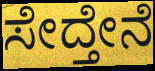
ಸೇದ್ತೇನೆ